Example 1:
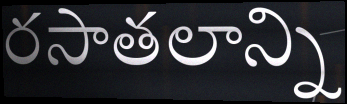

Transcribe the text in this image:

రసాతలాన్ని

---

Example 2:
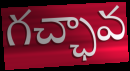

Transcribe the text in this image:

గచ్ఛావ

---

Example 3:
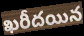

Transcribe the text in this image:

ఖరీదయిన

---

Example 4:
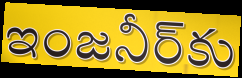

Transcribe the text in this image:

ఇంజనీర్‌కు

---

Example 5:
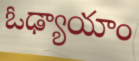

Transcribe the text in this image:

ఓఢ్యాయాం